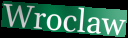
Wroclaw